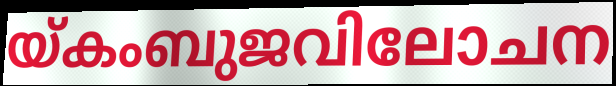
യ്കംബുജവിലോചന